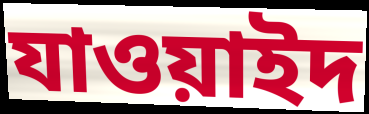
যাওয়াইদ